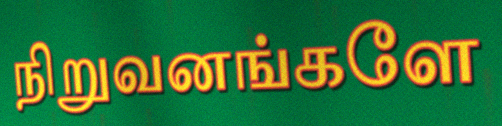
நிறுவனங்களே